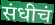
संधीचं